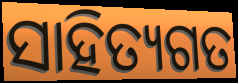
ସାହିତ୍ୟଗତ